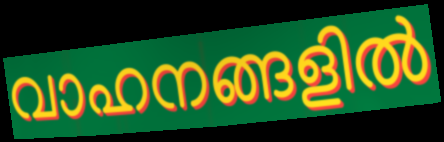
വാഹനങ്ങളിൽ